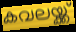
കവലയ്ക്ക്